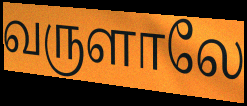
வருளாலே